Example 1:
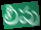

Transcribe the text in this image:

లీపు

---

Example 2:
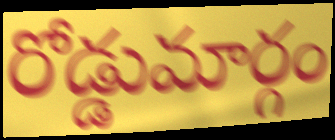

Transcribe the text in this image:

రోడ్డుమార్గం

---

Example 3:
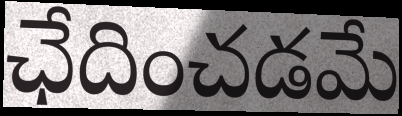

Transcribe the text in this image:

ఛేదించడమే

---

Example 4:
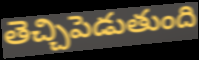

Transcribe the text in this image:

తెచ్చిపెడుతుంది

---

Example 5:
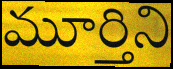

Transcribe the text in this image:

మూర్తిని